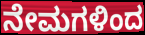
ನೇಮಗಳಿಂದ